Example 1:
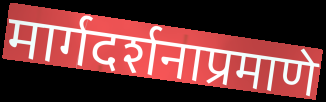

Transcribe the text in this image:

मार्गदर्शनाप्रमाणे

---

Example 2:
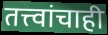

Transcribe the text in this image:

तत्त्वांचाही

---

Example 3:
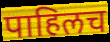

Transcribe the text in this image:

पाहिलच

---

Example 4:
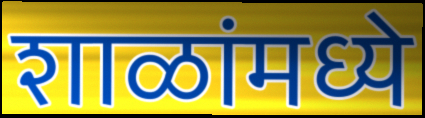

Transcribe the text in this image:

शाळांमध्ये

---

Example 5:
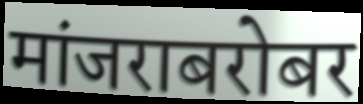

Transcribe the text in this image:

मांजराबरोबर